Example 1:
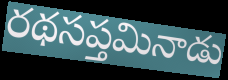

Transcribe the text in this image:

రథసప్తమినాడు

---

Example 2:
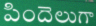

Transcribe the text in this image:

పిందెలుగా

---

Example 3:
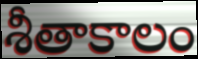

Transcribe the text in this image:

శీతాకాలం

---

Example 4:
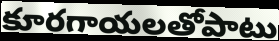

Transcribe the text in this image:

కూరగాయలతోపాటు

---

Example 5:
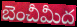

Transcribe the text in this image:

బెంచీమీద